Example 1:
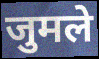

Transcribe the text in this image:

जुमले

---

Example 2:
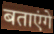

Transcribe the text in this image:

बताएंगे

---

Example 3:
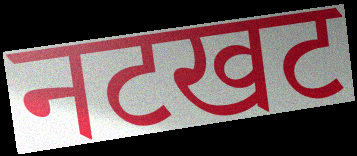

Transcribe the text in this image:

नटखट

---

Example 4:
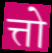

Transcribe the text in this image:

त्तो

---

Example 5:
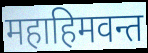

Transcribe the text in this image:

महाहिमवन्त